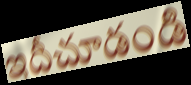
ఇదీచూడండి